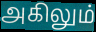
அகிலும்